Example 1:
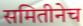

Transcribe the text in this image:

समितीनेच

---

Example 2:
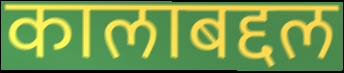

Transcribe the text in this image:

कालाबद्दल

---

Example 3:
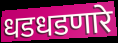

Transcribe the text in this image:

धडधडणारे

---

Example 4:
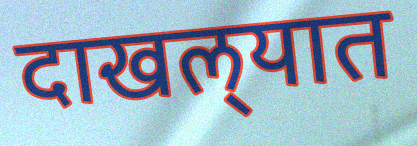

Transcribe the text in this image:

दाखल्यात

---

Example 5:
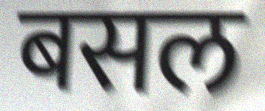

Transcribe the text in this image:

बसल